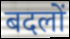
बदलों